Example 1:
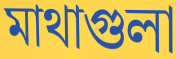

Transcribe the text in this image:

মাথাগুলা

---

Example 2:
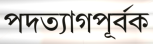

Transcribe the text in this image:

পদত্যাগপূর্বক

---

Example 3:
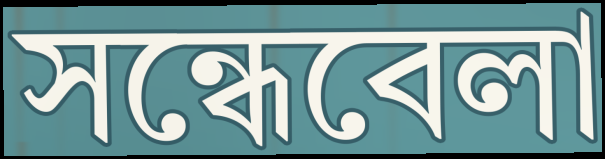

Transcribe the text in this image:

সন্ধেবেলা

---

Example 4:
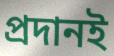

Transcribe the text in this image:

প্রদানই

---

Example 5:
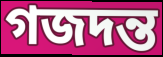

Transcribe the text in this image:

গজদন্ত